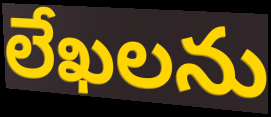
లేఖలను